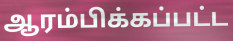
ஆரம்பிக்கப்பட்ட